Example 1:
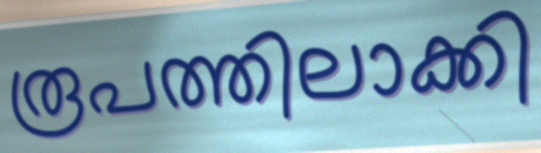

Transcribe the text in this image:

രൂപത്തിലാക്കി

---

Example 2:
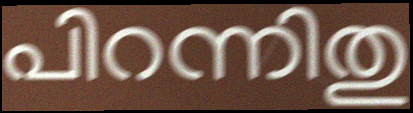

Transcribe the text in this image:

പിറന്നിതു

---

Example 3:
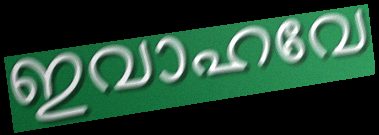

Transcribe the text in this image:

ഇവാഹവേ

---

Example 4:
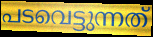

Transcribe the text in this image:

പടവെട്ടുന്നത്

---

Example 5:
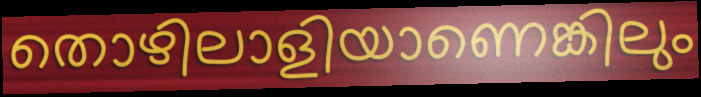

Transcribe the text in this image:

തൊഴിലാളിയാണെങ്കിലും